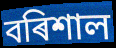
বৰিশাল